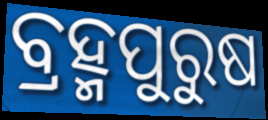
ବ୍ରହ୍ମପୁରୁଷ